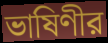
ভাষিণীর